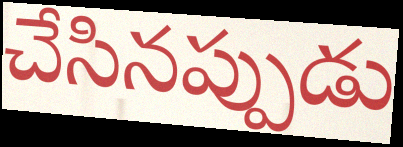
చేసినప్పుడు